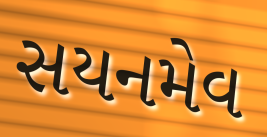
સયનમેવ